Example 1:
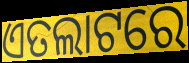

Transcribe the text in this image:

ଏତଲାଟରେ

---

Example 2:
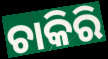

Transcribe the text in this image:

ଚାକିରି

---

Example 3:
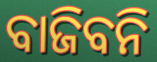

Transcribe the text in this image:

ବାଜିବନି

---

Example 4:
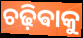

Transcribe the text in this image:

ଚଢ଼ିଵାକୁ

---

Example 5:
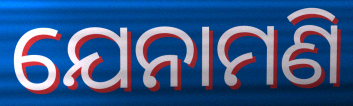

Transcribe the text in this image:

ଯେନାମଣି